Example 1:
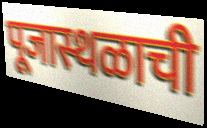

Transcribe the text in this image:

पूजास्थळाची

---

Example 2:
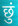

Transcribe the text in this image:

छुं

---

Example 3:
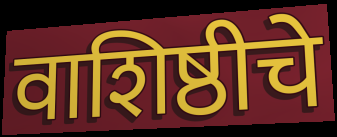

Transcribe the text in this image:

वाशिष्ठीचे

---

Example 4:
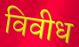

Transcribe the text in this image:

विवीध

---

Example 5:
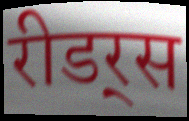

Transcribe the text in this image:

रीडर्स